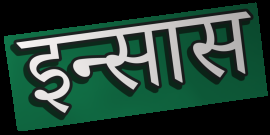
इन्सास